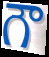
గౌ